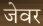
जेवर